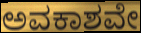
ಅವಕಾಶವೇ